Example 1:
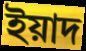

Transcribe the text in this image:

ইয়াদ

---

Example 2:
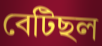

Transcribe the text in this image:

বেটিছল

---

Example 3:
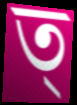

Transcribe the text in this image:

ত্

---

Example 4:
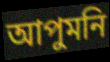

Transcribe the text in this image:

আপুমনি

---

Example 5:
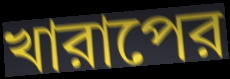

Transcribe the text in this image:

খারাপের